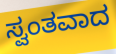
ಸ್ವಂತವಾದ